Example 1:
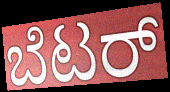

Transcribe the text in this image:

ಬೆಟರ್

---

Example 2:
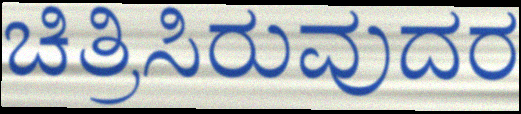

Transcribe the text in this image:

ಚಿತ್ರಿಸಿರುವುದರ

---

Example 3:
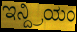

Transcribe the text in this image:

ಇನ್ದ್ರಿಯಂ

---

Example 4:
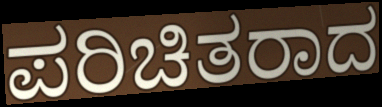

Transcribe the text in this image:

ಪರಿಚಿತರಾದ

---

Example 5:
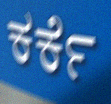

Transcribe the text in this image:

ಕರ್ಕೆ